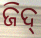
ଜିଦ୍